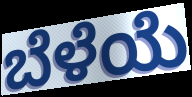
ಬೆಳೆಯೆ